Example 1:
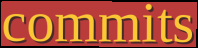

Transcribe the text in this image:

commits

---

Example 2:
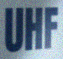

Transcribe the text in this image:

UHF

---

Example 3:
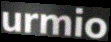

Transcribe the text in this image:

urmio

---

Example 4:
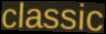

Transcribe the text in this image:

classic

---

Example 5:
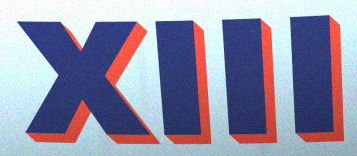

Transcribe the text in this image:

XIII